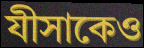
যীসাকেও